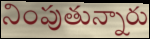
నింపుతున్నారు